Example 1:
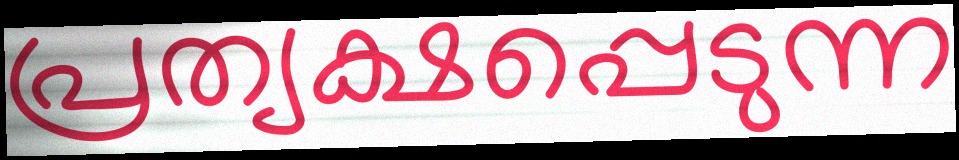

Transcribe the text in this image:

പ്രത്യക്ഷപ്പെടുന്ന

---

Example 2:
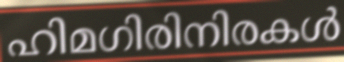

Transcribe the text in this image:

ഹിമഗിരിനിരകൾ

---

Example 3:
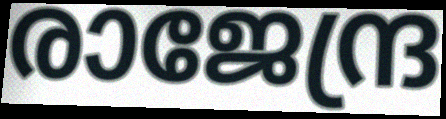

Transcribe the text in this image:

രാജേന്ദ്ര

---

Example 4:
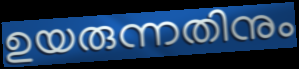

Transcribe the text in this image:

ഉയരുന്നതിനും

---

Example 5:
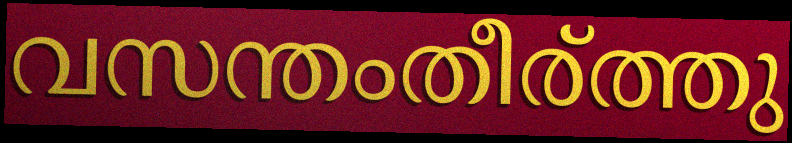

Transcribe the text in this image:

വസന്തംതീര്ത്തു